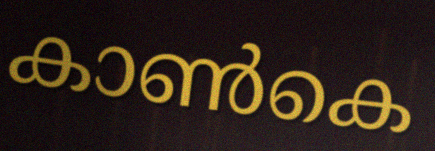
കാൺകെ